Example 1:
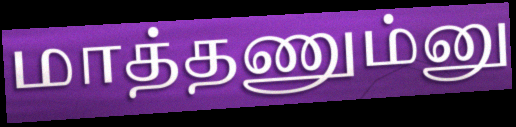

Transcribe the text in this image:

மாத்தணும்னு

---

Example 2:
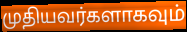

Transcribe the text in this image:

முதியவர்களாகவும்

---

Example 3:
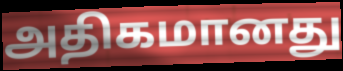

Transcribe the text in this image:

அதிகமானது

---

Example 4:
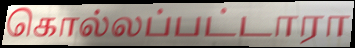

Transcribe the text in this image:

கொல்லப்பட்டாரா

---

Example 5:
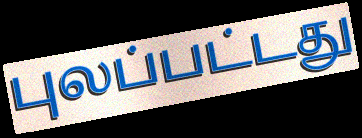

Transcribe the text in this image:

புலப்பட்டது